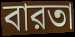
বারতা